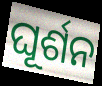
ଘୂର୍ଶନ